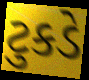
ટુકડે